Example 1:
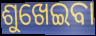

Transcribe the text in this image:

ଶୁଖେଇବା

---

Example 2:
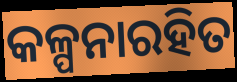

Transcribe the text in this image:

କଳ୍ପନାରହିତ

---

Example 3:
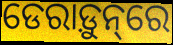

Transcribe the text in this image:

ଡେରାଡ଼ୁନ୍‌ରେ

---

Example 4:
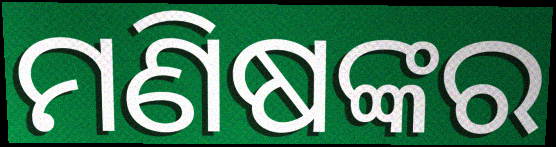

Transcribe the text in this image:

ମଣିଷଙ୍କର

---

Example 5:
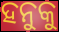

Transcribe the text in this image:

ହନୁକୁ